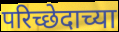
परिच्छेदाच्या